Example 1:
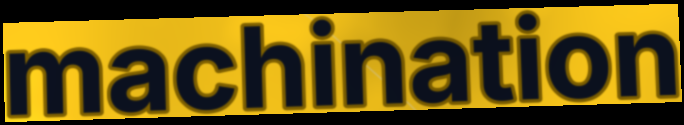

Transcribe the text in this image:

machination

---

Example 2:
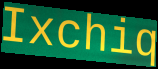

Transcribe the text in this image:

Ixchiq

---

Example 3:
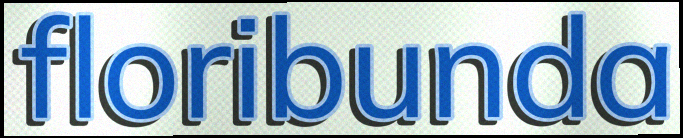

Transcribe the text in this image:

floribunda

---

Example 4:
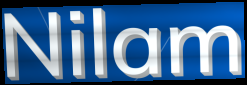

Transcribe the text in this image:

Nilam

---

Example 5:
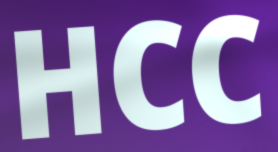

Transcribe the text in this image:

HCC